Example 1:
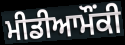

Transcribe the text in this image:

ਮੀਡੀਆਮੌਂਕੀ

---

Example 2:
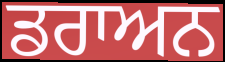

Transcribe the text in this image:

ਡਰਾਅਨ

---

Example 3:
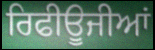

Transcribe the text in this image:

ਰਿਫੀਊਜੀਆਂ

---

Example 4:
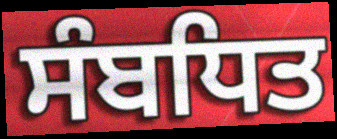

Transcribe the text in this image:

ਸੰਬਧਿਤ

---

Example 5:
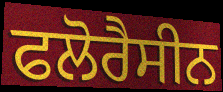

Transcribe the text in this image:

ਫਲੋਰੈਸੀਨ